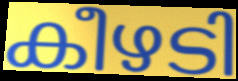
കീഴടി